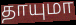
தாயுமா